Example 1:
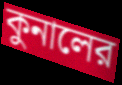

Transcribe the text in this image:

কুনালের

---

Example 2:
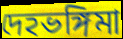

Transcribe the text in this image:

দেহভঙ্গিমা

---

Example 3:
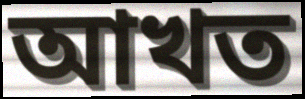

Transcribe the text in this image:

আখত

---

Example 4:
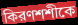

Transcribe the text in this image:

কিরণশশীকে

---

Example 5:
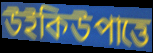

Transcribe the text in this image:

উইকিউপাত্তে